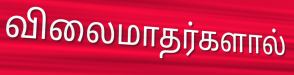
விலைமாதர்களால்